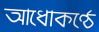
আধোকণ্ঠে